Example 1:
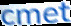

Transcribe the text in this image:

cmet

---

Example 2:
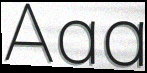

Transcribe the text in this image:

Aaa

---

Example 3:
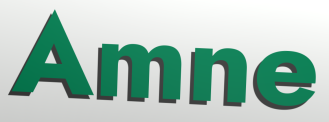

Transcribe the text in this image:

Amne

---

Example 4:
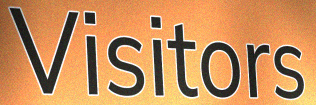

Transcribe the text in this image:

Visitors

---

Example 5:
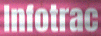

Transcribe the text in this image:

Infotrac